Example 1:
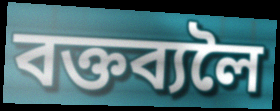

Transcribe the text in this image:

বক্তব্যলৈ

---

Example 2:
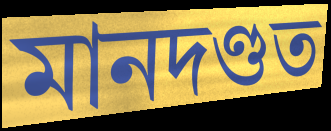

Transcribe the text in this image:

মানদণ্ডত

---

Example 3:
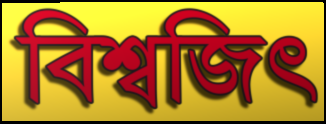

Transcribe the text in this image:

বিশ্বজিৎ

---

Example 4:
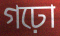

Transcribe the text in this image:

গঢ়ো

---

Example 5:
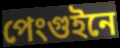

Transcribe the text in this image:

পেংগুইনে